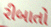
રીબાતો